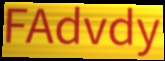
FAdvdy